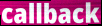
callback